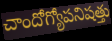
చాందోగ్యోపనిషత్తు